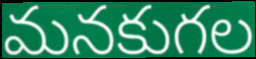
మనకుగల